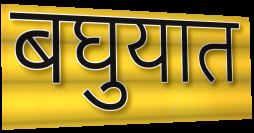
बघुयात